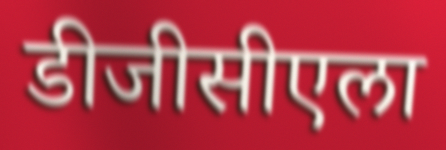
डीजीसीएला